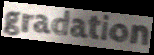
gradation